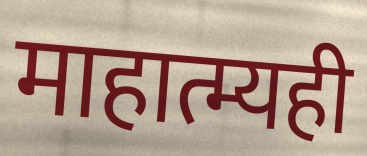
माहात्म्यही